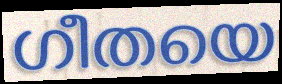
ഗീതയെ